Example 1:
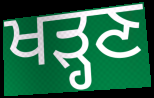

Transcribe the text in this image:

ਖੜ੍ਹਣ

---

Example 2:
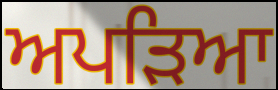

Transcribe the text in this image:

ਅਪੜਿਆ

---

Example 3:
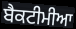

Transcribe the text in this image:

ਬੈਕਟੀਮੀਆ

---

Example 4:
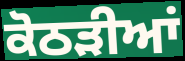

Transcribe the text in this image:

ਕੋਠੜੀਆਂ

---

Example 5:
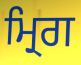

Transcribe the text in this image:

ਮ੍ਰਿਗ